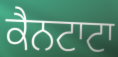
ਕੈਨਟਾਟਾ